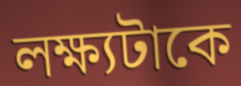
লক্ষ্যটাকে